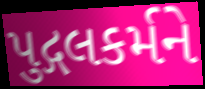
પુદ્ગલકર્મને